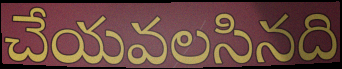
చేయవలసినది